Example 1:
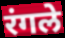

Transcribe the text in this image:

रंगले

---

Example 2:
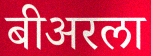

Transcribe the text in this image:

बीअरला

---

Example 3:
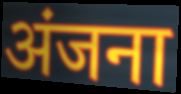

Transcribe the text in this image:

अंजना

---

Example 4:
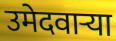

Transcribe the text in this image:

उमेदवार्‍या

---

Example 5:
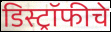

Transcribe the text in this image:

डिस्ट्रॉफीचे